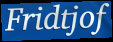
Fridtjof